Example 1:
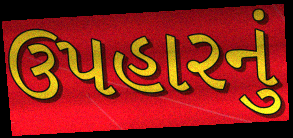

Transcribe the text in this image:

ઉપહારનું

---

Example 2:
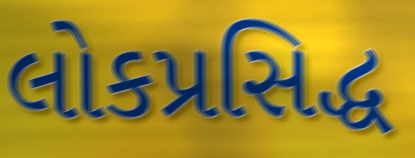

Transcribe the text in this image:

લોકપ્રસિદ્ધ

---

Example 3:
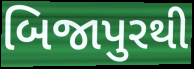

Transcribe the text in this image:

બિજાપુરથી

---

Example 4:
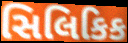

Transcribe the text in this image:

સિલિકિક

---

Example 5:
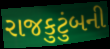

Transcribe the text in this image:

રાજકુટુંબની